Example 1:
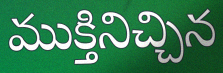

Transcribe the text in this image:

ముక్తినిచ్చిన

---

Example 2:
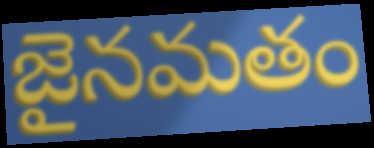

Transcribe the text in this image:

జైనమతం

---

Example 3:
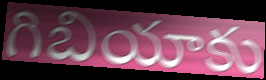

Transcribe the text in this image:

గిబియాకు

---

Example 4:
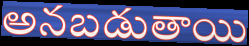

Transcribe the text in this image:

అనబడుతాయి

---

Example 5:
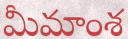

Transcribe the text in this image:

మీమాంశ